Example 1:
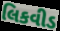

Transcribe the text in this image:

લિકવીડ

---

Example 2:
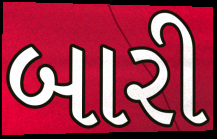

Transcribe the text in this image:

બારી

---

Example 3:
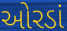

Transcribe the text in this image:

ઓરડાં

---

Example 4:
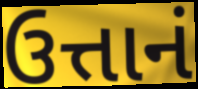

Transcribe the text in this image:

ઉત્તાનં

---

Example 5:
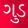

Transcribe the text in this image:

ગુડ